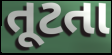
તૂટતા